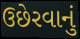
ઉછેરવાનું